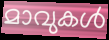
മാവുകൾ